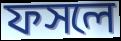
ফসলে